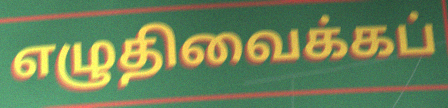
எழுதிவைக்கப்